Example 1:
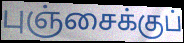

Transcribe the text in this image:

புஞ்சைக்குப்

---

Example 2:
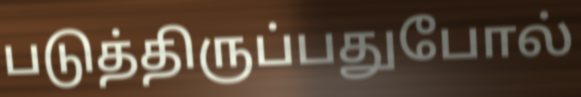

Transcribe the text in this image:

படுத்திருப்பதுபோல்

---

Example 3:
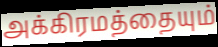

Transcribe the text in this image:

அக்கிரமத்தையும்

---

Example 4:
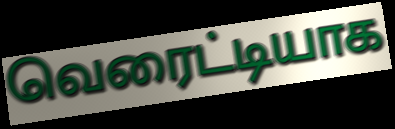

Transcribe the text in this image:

வெரைட்டியாக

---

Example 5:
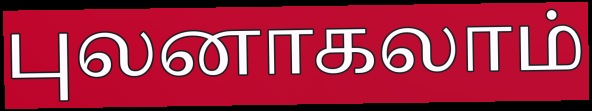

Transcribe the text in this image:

புலனாகலாம்